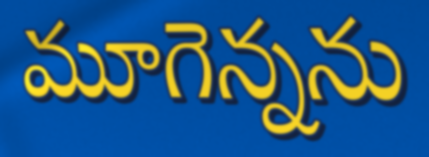
మూగెన్నను